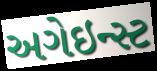
અગેઇન્સ્ટ